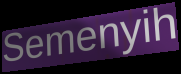
Semenyih